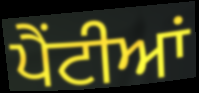
ਪੈਂਟੀਆਂ